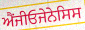
ਐਂਜੀਓਜੇਨੇਸਿਸ